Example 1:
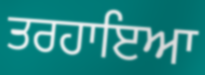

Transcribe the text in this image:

ਤਰਹਾਇਆ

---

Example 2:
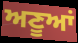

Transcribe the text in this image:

ਅਣੂਆਂ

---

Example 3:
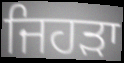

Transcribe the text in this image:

ਜਿਹੜਾ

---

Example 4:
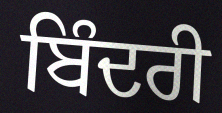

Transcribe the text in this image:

ਬਿੰਦਰੀ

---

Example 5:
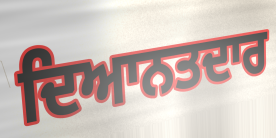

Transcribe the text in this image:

ਦਿਆਨਤਦਾਰ